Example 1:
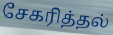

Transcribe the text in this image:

சேகரித்தல்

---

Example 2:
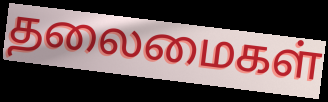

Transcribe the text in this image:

தலைமைகள்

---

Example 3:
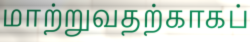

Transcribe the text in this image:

மாற்றுவதற்காகப்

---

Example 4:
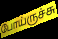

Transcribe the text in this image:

போய்ருச்சு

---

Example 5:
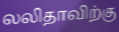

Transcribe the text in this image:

லலிதாவிற்கு